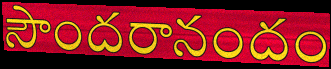
సౌందరానందం